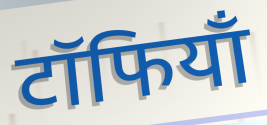
टॉफियाँ